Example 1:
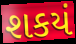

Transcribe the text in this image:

શકયં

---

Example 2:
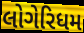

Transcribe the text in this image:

લોગેરિધમ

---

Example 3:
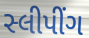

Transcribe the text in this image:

સ્લીપીંગ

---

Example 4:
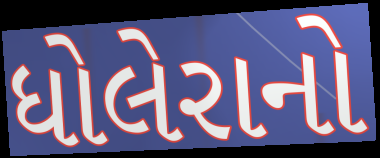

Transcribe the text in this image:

ધોલેરાનો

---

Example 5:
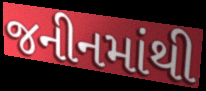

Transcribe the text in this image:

જનીનમાંથી